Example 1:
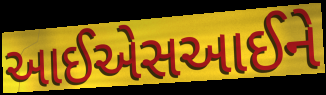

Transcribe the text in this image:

આઈએસઆઈને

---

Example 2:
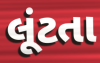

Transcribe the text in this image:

લૂંટતા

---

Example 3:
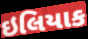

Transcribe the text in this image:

ઇલિયાક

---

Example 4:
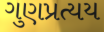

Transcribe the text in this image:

ગુણપ્રત્યય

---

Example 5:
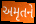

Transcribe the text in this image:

અમૃતને